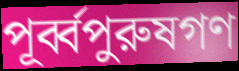
পূর্ব্বপুরুষগণ